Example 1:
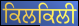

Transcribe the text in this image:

ਕਿਲਕਿਲੀ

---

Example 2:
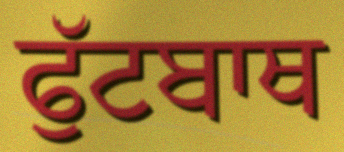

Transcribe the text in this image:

ਫੁੱਟਬਾਥ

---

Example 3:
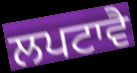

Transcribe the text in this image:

ਲਪਟਾਵੈ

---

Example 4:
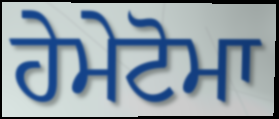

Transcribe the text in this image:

ਹੇਮੇਟੋਮਾ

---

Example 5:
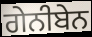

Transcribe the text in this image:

ਗੇਨੀਬੇਨ